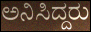
ಅನಿಸಿದ್ದರು